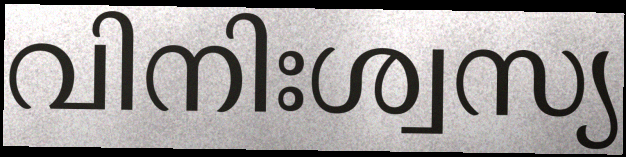
വിനിഃശ്വസ്യ